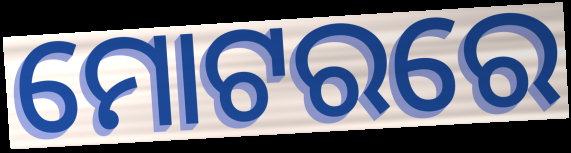
ମୋଟରରେ